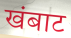
खंबाट